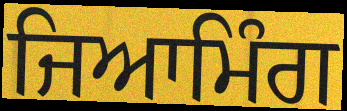
ਜਿਆਮਿੰਗ